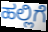
ಹಲ್ಲಿಗೆ